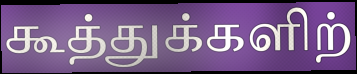
கூத்துக்களிற்